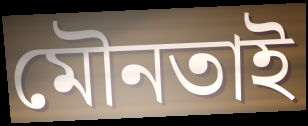
মৌনতাই